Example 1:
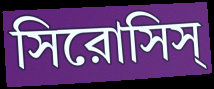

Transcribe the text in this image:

সিরোসিস্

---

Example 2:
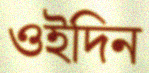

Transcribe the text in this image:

ওইদিন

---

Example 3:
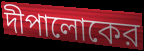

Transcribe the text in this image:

দীপালোকের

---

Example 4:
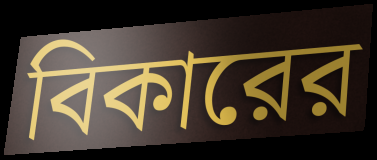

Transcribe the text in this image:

বিকারের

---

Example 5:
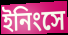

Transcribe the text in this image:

ইনিংসে